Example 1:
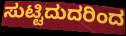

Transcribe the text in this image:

ಸುಟ್ಟಿದುದರಿಂದ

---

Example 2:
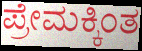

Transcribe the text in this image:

ಪ್ರೇಮಕ್ಕಿಂತ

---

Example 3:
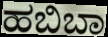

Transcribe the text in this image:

ಹಬಿಬಾ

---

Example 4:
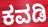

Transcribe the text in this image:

ಕವಡಿ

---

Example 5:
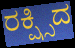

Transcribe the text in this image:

ರಕ್ಷ್ಸಿದ